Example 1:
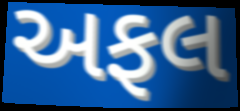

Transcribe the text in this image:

અફલ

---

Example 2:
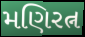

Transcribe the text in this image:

મણિરત્ન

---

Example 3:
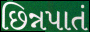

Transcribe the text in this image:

છિન્નપાતં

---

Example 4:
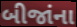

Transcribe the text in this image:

બીજાંના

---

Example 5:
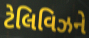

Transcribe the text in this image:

ટેલિવિઝને